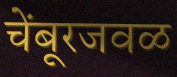
चेंबूरजवळ